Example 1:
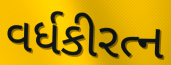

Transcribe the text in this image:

વર્ધકીરત્ન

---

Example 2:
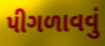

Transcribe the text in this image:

પીગળાવવું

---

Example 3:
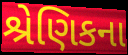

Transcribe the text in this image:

શ્રેણિકના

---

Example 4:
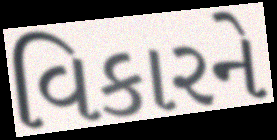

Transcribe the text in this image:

વિકારને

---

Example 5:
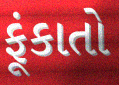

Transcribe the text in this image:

ફૂંકાતો